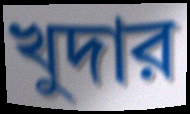
খুদার